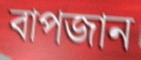
বাপজান